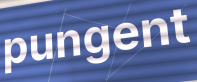
pungent